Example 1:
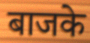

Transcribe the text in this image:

बाजके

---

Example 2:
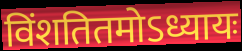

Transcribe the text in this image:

विंशतितमोऽध्यायः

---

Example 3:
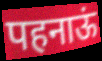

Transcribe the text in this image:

पहनाऊं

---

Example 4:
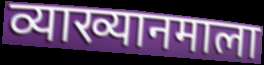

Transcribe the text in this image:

व्याख्यानमाला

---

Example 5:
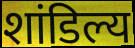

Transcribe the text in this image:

शांडिल्य